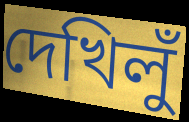
দেখিলুঁ